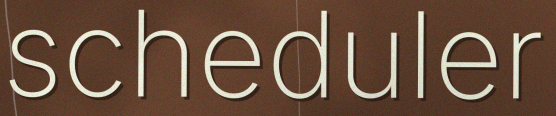
scheduler